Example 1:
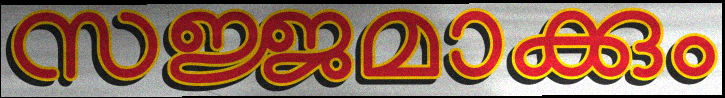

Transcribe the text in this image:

സജ്ജമാക്കും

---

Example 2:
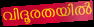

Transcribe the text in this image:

വിദൂരതയിൽ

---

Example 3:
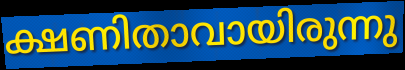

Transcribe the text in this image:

ക്ഷണിതാവായിരുന്നു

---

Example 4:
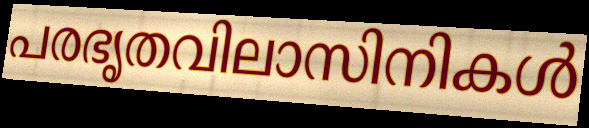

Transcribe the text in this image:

പരഭൃതവിലാസിനികൾ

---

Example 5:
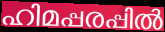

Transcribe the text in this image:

ഹിമപ്പരപ്പിൽ